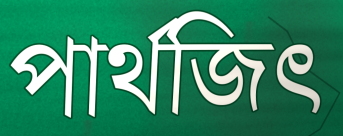
পার্থজিৎ